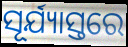
ସୂର୍ଯ୍ୟାସ୍ତରେ